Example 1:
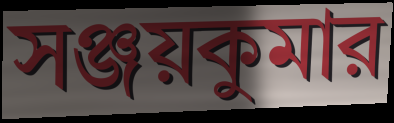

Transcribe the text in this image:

সঞ্জয়কুমার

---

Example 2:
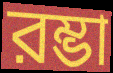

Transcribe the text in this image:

রম্ভা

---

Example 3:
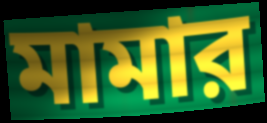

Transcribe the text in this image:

মামার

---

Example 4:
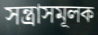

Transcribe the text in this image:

সন্ত্রাসমূলক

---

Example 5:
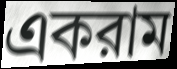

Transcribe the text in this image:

একরাম